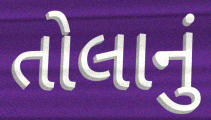
તોલાનું